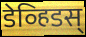
डेव्हिडस्